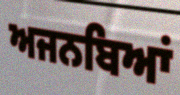
ਅਜਨਬਿਆਂ